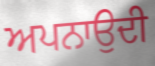
ਅਪਨਾਉਦੀ